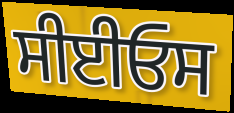
ਸੀਈਓਸ